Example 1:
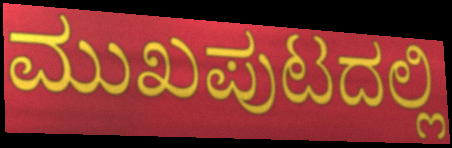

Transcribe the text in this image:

ಮುಖಪುಟದಲ್ಲಿ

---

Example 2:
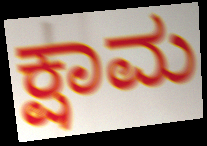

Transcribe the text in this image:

ಕ್ಷಾಮ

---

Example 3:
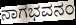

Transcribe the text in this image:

ನಾಗಭವನಂ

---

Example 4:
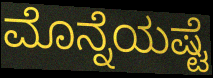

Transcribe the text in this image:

ಮೊನ್ನೆಯಷ್ಟೆ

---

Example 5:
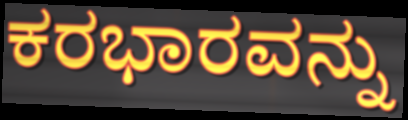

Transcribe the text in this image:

ಕರಭಾರವನ್ನು